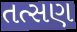
તત્સણ